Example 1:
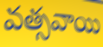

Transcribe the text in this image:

వత్సవాయి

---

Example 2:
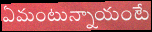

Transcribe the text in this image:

ఏమంటున్నాయంటే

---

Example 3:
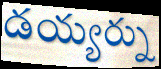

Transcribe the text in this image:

డయ్యర్ను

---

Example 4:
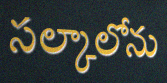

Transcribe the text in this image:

సల్కాలోను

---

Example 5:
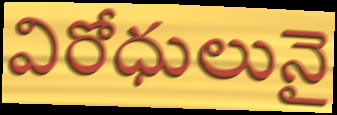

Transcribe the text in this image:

విరోధులునై